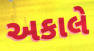
અકાલે